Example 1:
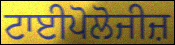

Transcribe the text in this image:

ਟਾਈਪੋਲੋਜੀਜ਼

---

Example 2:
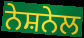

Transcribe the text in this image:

ਨੇਸ਼ਨੇਲ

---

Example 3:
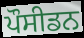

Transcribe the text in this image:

ਪੌਸੀਡਨ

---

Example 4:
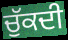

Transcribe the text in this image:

ਚੁੱਕਦੀ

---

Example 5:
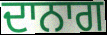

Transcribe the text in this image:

ਦਾਨਾਗ